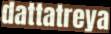
dattatreya